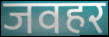
जवहर